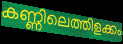
കണ്ണിലെത്തിളക്കം